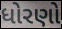
ધોરણો